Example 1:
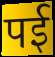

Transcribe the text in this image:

पई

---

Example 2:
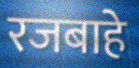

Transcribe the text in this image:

रजबाहे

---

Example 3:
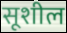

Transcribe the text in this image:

सूशील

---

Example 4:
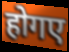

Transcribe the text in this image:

होगए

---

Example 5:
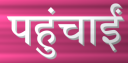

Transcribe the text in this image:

पहुंचाईं